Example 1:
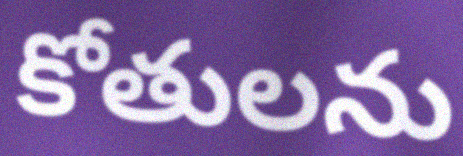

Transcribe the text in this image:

కోతులను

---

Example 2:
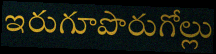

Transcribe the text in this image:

ఇరుగూపొరుగోల్లు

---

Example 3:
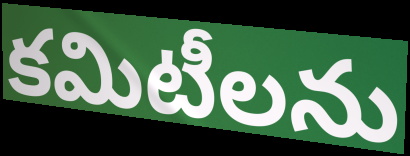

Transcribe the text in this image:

కమిటీలను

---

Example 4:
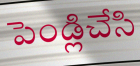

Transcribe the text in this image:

పెండ్లిచేసి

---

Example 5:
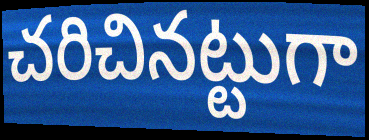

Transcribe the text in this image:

చరిచినట్టుగా